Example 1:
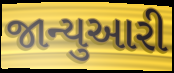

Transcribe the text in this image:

જાન્યુઆરી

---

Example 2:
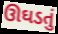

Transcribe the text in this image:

ઊઘડતું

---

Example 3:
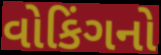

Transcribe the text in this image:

વોકિંગનો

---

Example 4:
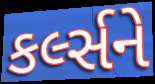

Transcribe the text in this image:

કર્લ્સને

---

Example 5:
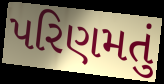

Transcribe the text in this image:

પરિણમતું